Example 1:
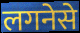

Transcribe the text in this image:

लगनेसे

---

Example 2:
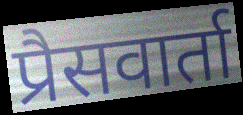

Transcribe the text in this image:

प्रैसवार्ता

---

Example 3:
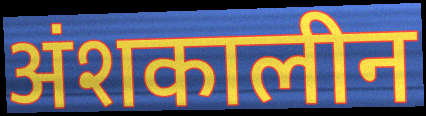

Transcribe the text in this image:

अंशकालीन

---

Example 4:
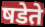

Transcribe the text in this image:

षडेते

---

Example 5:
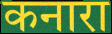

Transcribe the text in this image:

कनारा